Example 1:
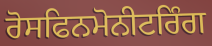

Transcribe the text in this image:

ਰੋਸਫਿਨਮੋਨੀਟਰਿੰਗ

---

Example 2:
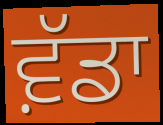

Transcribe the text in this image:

ਵ਼ੱਡਾ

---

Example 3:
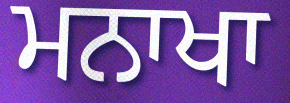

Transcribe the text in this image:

ਮਨਾਖਾ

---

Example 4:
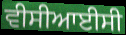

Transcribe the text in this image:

ਵੀਸੀਆਈਸੀ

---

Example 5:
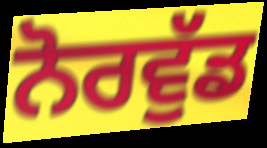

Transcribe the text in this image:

ਨੋਰਵੁੱਡ